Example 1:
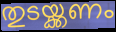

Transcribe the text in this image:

തുടയ്ക്കണം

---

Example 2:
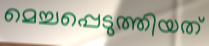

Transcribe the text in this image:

മെച്ചപ്പെടുത്തിയത്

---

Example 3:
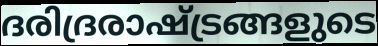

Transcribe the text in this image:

ദരിദ്രരാഷ്ട്രങ്ങളുടെ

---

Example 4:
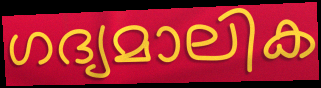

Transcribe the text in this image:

ഗദ്യമാലിക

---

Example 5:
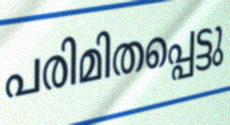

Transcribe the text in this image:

പരിമിതപ്പെട്ടു